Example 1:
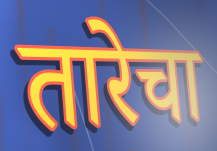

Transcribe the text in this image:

तारेचा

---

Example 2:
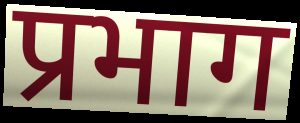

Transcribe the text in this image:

प्रभाग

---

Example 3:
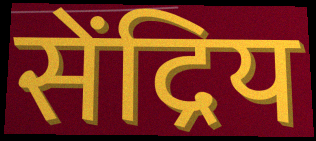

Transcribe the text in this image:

सेंद्रिय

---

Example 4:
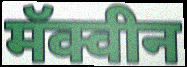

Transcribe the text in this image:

मॅक्वीन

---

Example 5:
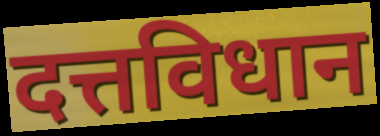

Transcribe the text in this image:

दत्तविधान